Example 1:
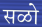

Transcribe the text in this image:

सळो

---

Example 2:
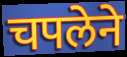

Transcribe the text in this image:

चपलेने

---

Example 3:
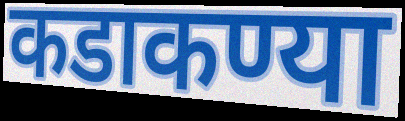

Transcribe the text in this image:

कडाकण्या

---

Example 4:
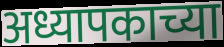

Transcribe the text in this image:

अध्यापकाच्या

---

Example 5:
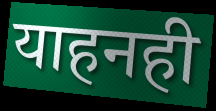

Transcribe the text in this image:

याहनही